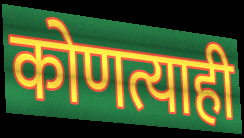
कोणत्याही